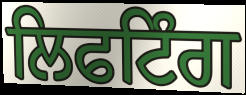
ਲਿਫਟਿੰਗ